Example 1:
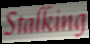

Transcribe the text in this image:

Stalking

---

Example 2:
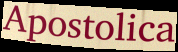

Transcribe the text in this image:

Apostolica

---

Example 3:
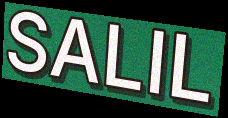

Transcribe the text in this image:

SALIL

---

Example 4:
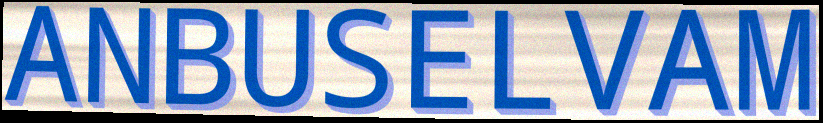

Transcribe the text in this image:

ANBUSELVAM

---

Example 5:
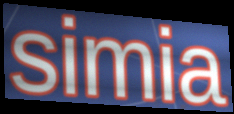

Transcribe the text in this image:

simia